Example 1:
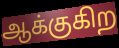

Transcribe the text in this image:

ஆக்குகிற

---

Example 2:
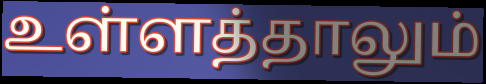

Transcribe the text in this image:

உள்ளத்தாலும்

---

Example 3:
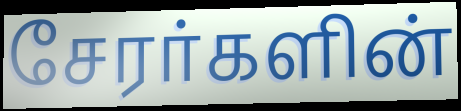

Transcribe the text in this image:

சேரர்களின்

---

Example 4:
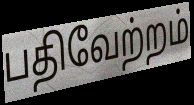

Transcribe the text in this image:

பதிவேற்றம்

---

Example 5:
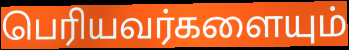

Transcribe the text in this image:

பெரியவர்களையும்